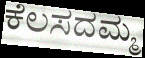
ಕೆಲಸದಮ್ಮ